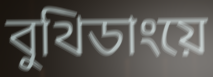
বুথিডাংয়ে